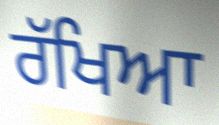
ਰੱਖਿਆ